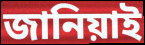
জানিয়াই